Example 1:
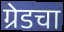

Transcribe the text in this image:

ग्रेडचा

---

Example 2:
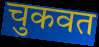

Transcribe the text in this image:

चुकवत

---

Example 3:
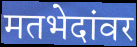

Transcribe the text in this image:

मतभेदांवर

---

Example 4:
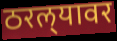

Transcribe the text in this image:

ठरल्यावर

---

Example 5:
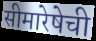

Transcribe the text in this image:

सीमारेषेची